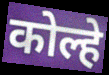
कोल्हे